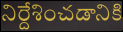
నిర్దేశించడానికి